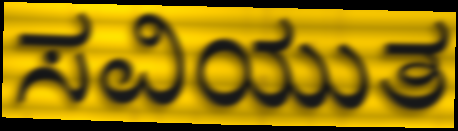
ಸವಿಯುತ